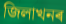
জিলাখনৰ